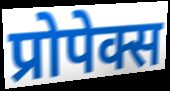
प्रोपेक्स